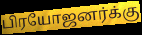
பிரயோஜனர்க்கு